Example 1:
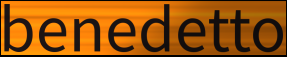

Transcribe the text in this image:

benedetto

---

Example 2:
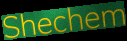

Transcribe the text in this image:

Shechem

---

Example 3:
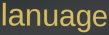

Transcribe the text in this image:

lanuage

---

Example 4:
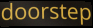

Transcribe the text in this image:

doorstep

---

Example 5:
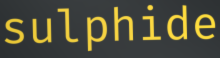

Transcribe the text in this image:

sulphide